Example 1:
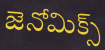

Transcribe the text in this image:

జెనోమిక్స్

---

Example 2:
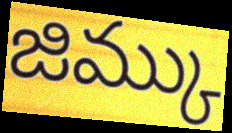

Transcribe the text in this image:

జిమ్కు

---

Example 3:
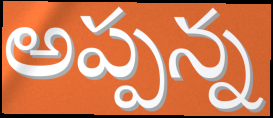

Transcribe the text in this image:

అప్పన్న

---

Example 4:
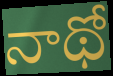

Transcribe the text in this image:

నాథో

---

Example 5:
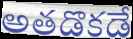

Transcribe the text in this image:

అతడొకడే